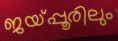
ജയ്പ്പൂരിലും